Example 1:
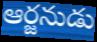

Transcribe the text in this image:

ఆర్జనుడు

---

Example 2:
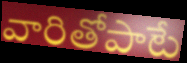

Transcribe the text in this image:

వారితోపాటే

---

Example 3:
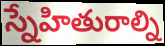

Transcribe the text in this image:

స్నేహితురాల్ని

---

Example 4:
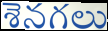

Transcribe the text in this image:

శెనగలు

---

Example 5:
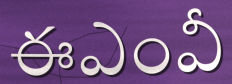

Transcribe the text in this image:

ఈఎంవీ